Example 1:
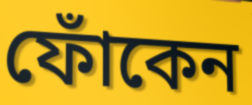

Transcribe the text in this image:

ফোঁকেন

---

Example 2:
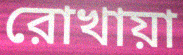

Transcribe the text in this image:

রোখায়া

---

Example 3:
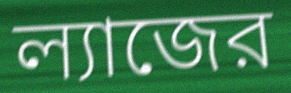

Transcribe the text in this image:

ল্যাজের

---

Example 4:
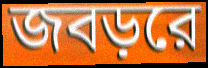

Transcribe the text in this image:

জবড়রে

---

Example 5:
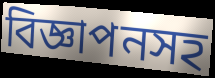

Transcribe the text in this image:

বিজ্ঞাপনসহ